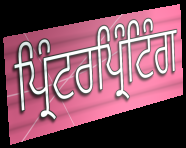
ਪ੍ਰਿੰਟਰਪ੍ਰਿੰਟਿੰਗ